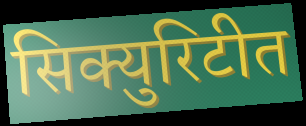
सिक्युरिटीत